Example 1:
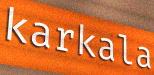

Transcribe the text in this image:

karkala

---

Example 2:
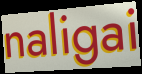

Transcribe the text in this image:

naligai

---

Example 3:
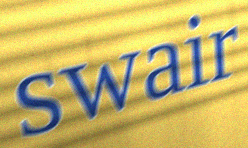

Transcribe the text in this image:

swair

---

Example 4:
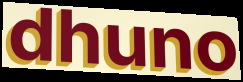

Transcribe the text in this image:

dhuno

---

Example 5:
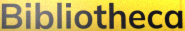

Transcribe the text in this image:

Bibliotheca